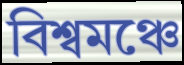
বিশ্বমঞ্চে